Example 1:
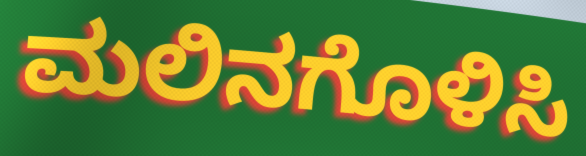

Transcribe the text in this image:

ಮಲಿನಗೊಳಿಸಿ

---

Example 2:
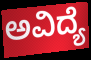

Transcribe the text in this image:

ಅವಿದ್ಯೆ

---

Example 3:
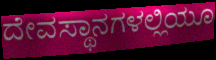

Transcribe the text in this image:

ದೇವಸ್ಥಾನಗಳಲ್ಲಿಯೂ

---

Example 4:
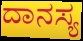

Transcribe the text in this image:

ದಾನಸ್ಯ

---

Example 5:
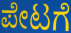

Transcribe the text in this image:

ಪೇಟಗೆ